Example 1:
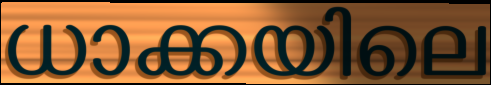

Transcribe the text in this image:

ധാക്കയിലെ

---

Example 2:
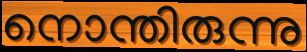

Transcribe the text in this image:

നൊന്തിരുന്നു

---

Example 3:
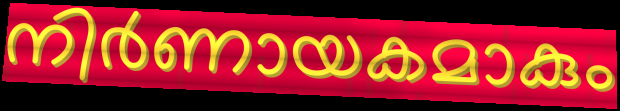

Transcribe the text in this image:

നിർണായകമാകും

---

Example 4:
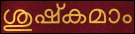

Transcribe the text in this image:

ശുഷ്കമാം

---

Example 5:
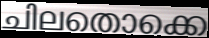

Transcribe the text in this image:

ചിലതൊക്കെ